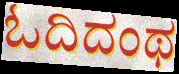
ಓದಿದಂಥ